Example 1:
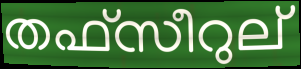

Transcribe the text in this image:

തഫ്സീറുല്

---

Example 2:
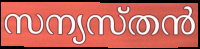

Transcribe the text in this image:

സന്യസ്തൻ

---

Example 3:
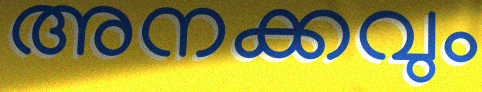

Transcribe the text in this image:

അനക്കവും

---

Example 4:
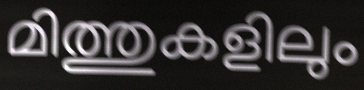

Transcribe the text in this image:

മിത്തുകളിലും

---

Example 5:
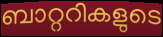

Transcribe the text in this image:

ബാറ്ററികളുടെ